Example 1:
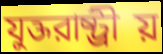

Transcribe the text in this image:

যুক্তরাষ্ট্রীয়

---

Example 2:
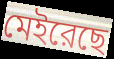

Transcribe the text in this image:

মেইরেছে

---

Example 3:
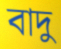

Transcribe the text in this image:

বাদু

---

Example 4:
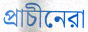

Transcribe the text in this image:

প্রাচীনেরা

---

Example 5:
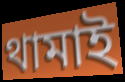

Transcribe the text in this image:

থামাই